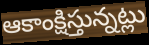
ఆకాంక్షిస్తున్నట్లు